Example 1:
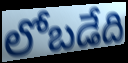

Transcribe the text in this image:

లోబడేది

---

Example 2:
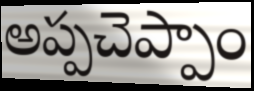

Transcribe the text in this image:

అప్పచెప్పాం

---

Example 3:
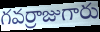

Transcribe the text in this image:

గవర్రాజుగారు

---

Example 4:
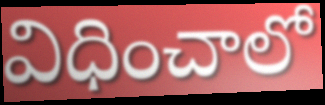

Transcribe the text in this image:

విధించాలో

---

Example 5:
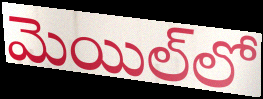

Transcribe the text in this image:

మెయిల్‌లో